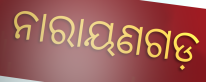
ନାରାୟଣଗଡ଼